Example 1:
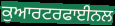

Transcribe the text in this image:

ਕੁਆਰਟਰਫਾਈਨਲ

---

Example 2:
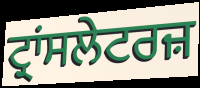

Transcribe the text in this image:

ਟ੍ਰਾਂਸਲੇਟਰਜ਼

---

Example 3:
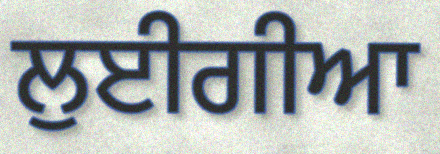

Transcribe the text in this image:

ਲੁਈਗੀਆ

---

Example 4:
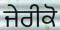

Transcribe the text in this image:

ਜੇਰੀਕੋ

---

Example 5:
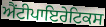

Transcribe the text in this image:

ਐਂਟੀਪਾਇਰੇਟਿਕਸ